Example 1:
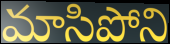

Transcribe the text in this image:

మాసిపోని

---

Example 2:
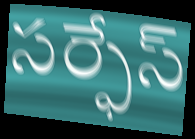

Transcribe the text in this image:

సర్ఫేస్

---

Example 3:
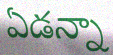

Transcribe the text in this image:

ఏడన్నా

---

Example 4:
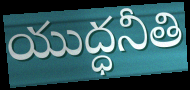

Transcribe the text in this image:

యుద్ధనీతి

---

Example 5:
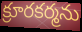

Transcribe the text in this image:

క్రూరకర్మను